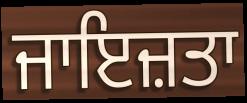
ਜਾਇਜ਼ਤਾ